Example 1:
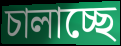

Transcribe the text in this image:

চালাচ্ছে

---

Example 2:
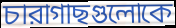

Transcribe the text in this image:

চারাগাছগুলোকে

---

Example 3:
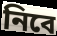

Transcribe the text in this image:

নিবে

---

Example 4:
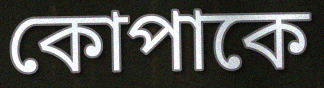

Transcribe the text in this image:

কোপাকে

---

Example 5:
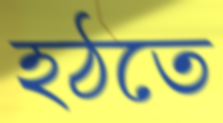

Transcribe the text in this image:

হঠতে